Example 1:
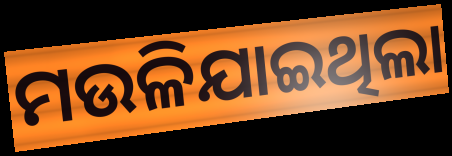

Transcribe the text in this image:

ମଉଳିଯାଇଥିଲା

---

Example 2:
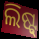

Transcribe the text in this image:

ଲିଷ୍ଟ୍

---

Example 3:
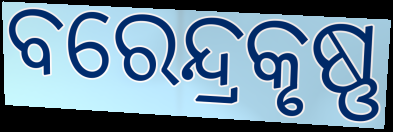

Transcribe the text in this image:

ବରେନ୍ଦ୍ରକୃଷ୍ଣ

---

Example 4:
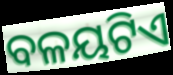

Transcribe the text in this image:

ବଳୟଟିଏ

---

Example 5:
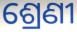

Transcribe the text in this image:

ଶ୍ରେଣୀ